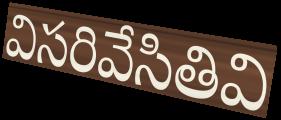
విసరివేసితివి